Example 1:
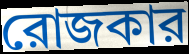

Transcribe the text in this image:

রোজকার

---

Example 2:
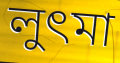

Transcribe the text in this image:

লুৎমা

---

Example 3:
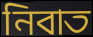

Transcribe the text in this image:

নিবাত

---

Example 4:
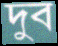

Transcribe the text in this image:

দুব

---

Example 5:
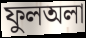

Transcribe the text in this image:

ফুলঅলা